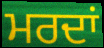
ਮਰਦਾਂ